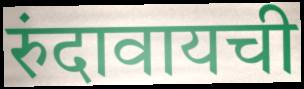
रुंदावायची